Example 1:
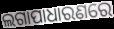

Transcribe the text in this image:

ଲଗାପାଧାରଣରେ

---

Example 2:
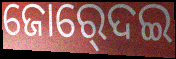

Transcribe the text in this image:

ଜୋର୍‍ଦେଇ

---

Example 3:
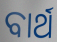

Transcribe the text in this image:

ବାର୍ଥ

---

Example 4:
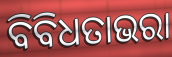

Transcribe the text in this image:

ବିବିଧତାଭରା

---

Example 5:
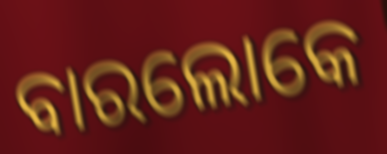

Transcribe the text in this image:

ବାରଲୋକେ